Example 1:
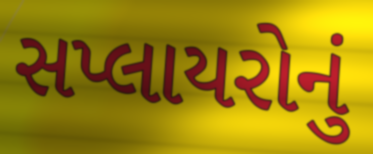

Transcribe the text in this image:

સપ્લાયરોનું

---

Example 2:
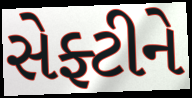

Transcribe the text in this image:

સેફ્ટીને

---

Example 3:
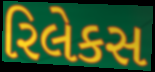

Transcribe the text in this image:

રિલેકસ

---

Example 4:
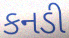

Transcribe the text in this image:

કનડી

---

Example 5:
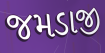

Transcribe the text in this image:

જમડાજી